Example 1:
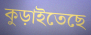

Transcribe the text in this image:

কুড়াইতেছে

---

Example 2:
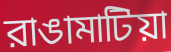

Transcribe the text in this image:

রাঙামাটিয়া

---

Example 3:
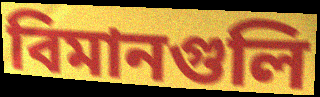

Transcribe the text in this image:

বিমানগুলি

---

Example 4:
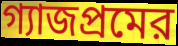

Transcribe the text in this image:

গ্যাজপ্রমের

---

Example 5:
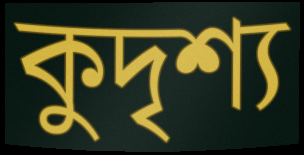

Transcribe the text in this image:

কুদৃশ্য